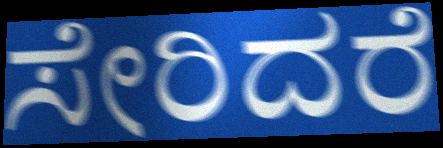
ಸೇರಿದರೆ